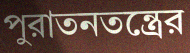
পুরাতনতন্ত্রের